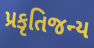
પ્રકૃતિજન્ય